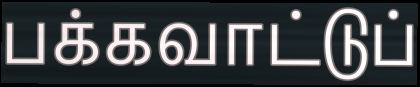
பக்கவாட்டுப்